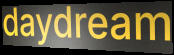
daydream